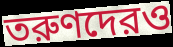
তরুণদেরও